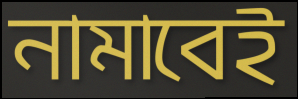
নামাবেই